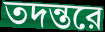
তদন্তরে